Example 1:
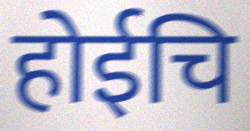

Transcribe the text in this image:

होईचि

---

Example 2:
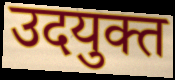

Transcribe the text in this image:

उदयुक्त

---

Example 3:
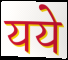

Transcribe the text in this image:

यये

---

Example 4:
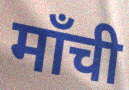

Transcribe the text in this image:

माँची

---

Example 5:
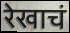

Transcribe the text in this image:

रेखाचं